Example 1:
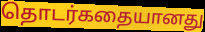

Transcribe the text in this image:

தொடர்கதையானது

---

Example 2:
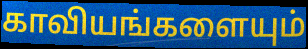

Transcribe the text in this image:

காவியங்களையும்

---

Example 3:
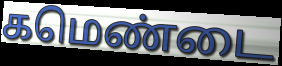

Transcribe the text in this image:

கமெண்டை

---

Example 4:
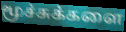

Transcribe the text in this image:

மூச்சுக்களை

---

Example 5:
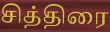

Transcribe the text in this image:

சித்திரை